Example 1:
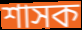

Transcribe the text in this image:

শাসক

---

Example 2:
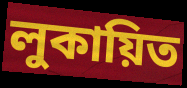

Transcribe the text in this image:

লুকায়িত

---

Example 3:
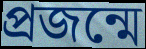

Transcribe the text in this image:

প্রজন্মে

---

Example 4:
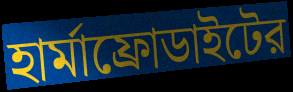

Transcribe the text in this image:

হার্মাফ্রোডাইটের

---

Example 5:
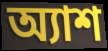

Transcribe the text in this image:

অ্যাশ